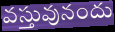
వస్తువునందు